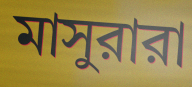
মাসুরারা